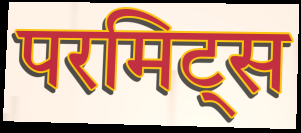
परमिट्स